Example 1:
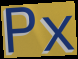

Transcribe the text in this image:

Px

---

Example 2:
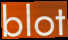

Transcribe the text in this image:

blot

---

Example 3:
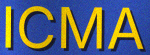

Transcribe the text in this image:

ICMA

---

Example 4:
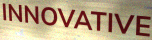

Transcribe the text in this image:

INNOVATIVE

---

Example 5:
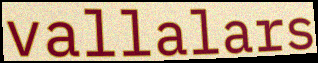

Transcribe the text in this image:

vallalars